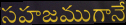
సహజముగానే